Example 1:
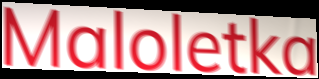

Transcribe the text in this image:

Maloletka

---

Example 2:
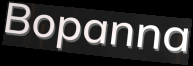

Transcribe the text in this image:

Bopanna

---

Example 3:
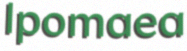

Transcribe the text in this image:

Ipomaea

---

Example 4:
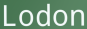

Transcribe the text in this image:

Lodon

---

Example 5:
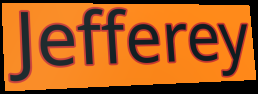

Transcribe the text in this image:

Jefferey